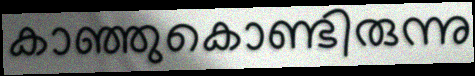
കാഞ്ഞുകൊണ്ടിരുന്നു